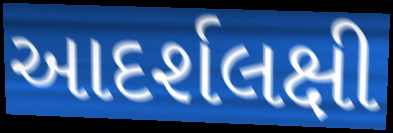
આદર્શલક્ષી